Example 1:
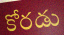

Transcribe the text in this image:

కోరడు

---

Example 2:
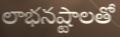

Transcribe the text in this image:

లాభనష్టాలతో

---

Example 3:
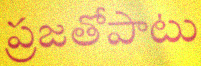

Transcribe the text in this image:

ప్రజతోపాటు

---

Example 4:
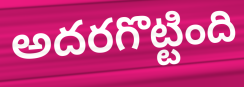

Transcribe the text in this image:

అదరగొట్టింది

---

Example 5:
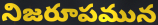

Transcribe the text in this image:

నిజరూపమున